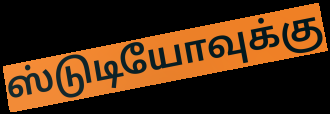
ஸ்டுடியோவுக்கு